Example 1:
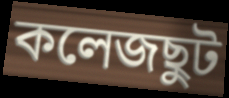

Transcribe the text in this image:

কলেজছুট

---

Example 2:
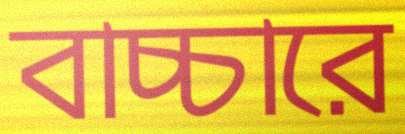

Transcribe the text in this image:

বাচ্চারে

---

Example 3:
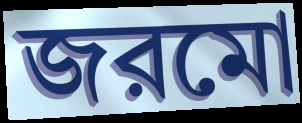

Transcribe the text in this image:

জরমো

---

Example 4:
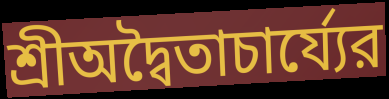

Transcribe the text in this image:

শ্রীঅদ্বৈতাচার্য্যের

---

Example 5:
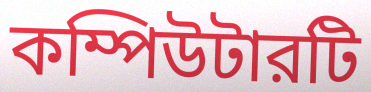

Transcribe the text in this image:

কম্পিউটারটি